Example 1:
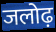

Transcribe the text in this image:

जलोढ़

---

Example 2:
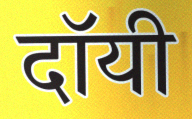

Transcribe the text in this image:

दॉयी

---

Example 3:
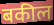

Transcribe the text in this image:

बकील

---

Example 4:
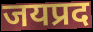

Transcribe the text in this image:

जयप्रद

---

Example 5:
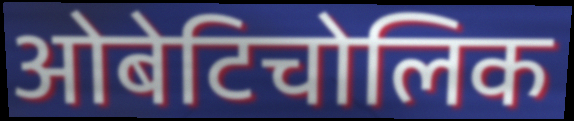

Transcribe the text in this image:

ओबेटिचोलिक